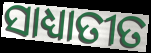
ସାଧ୍ୟାତୀତ